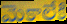
మెకాలేకి